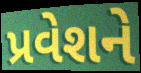
પ્રવેશને